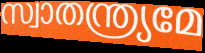
സ്വാതന്ത്ര്യമേ